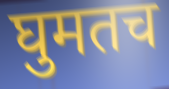
घुमतच